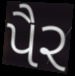
પૈર